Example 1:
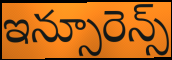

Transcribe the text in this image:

ఇన్సూరెన్స్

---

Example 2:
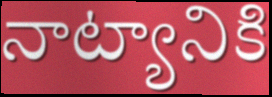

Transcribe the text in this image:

నాట్యానికి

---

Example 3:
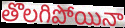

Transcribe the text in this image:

తొలగిపోయినా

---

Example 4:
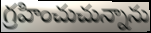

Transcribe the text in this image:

గ్రహించుచున్నాను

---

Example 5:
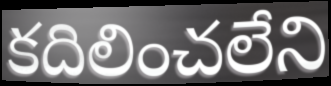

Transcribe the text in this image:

కదిలించలేని